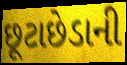
છૂટાછેડાની